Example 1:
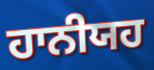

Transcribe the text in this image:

ਹਾਨੀਯਹ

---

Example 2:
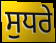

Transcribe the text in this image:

ਸੁਧਰੇ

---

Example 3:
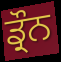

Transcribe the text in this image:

ਡ੍ਰੌਨ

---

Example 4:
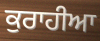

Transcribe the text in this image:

ਕੁਰਾਹੀਆ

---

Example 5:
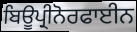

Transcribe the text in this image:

ਬਿਊਪ੍ਰੀਨੋਰਫਾਈਨ